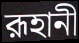
রূহানী